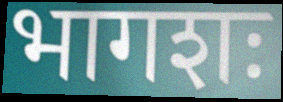
भागशः